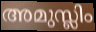
അമുസ്ലിം